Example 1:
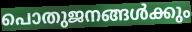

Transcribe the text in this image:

പൊതുജനങ്ങൾക്കും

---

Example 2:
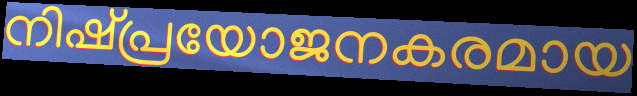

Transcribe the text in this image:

നിഷ്പ്രയോജനകരമായ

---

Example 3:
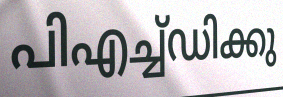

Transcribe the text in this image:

പിഎച്ച്ഡിക്കു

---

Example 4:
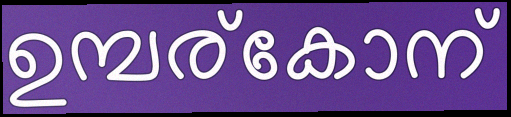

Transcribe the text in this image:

ഉമ്പര്കോന്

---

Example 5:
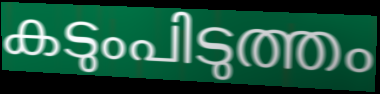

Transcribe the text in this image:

കടുംപിടുത്തം